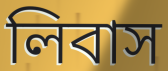
লিবাস